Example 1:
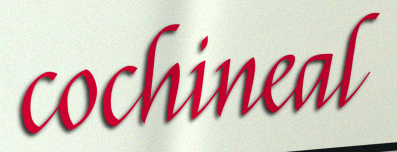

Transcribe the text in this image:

cochineal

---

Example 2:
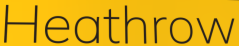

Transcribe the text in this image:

Heathrow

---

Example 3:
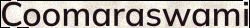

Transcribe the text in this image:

Coomaraswami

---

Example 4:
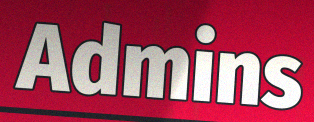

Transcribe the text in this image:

Admins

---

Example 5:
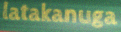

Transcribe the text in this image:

latakanuga